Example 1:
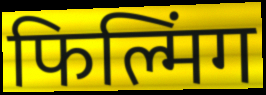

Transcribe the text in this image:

फिल्मिंग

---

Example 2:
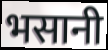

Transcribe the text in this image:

भसानी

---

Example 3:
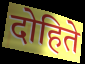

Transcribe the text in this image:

दोहिते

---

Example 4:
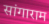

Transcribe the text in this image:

सांगाराम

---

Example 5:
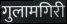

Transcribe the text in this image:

गुलामगिरी